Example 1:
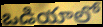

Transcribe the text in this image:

ఒడియాలో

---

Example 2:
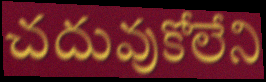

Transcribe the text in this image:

చదువుకోలేని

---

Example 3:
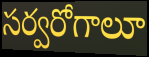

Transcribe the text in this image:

సర్వరోగాలూ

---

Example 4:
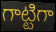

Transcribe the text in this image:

గాట్టిగా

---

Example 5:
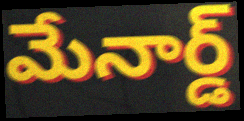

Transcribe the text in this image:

మేనార్డ్